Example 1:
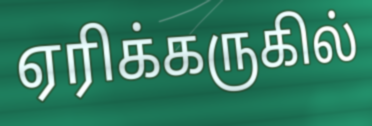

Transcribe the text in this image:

ஏரிக்கருகில்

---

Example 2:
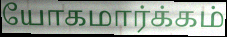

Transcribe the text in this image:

யோகமார்க்கம்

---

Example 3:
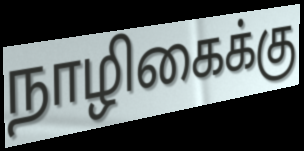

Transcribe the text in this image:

நாழிகைக்கு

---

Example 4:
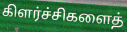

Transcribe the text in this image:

கிளர்ச்சிகளைத்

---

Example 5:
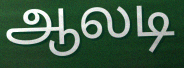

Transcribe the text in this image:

ஆலடி